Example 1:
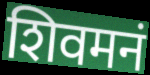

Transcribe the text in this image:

शिवमनं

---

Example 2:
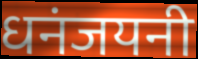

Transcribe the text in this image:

धनंजयनी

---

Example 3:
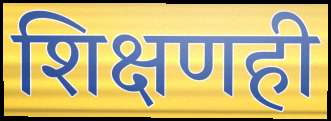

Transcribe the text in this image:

शिक्षणही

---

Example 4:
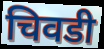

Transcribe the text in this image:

चिवडी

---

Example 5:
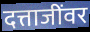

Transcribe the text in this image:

दत्ताजींवर